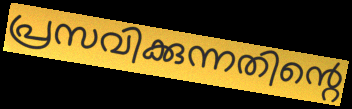
പ്രസവിക്കുന്നതിന്റെ